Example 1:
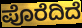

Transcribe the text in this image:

ಪೊರೆದಿದೆ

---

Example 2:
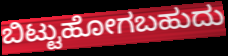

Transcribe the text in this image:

ಬಿಟ್ಟುಹೋಗಬಹುದು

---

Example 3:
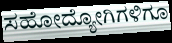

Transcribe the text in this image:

ಸಹೋದ್ಯೋಗಿಗಳಿಗೂ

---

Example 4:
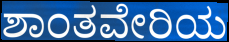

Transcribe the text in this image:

ಶಾಂತವೇರಿಯ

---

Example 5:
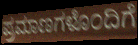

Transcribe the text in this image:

ಪ್ರಮಾಣಗಳೊಂದಿಗೆ